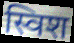
स्विश